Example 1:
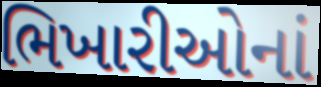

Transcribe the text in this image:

ભિખારીઓનાં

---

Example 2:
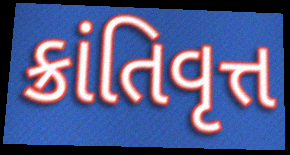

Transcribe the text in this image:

ક્રાંતિવૃત્ત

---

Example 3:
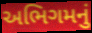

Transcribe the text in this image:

અભિગમનું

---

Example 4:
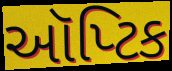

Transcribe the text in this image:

ઑપ્ટિક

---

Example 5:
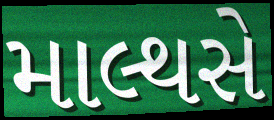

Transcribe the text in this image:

માલ્થસે